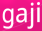
gaji